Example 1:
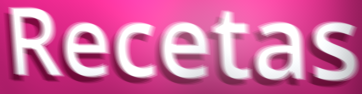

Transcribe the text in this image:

Recetas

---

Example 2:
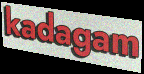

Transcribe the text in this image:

kadagam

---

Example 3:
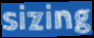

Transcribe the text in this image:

sizing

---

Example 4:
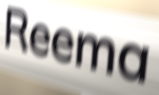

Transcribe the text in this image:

Reema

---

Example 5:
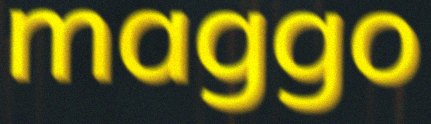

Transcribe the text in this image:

maggo